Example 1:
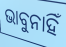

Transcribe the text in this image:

ଭାବୁନାହିଁ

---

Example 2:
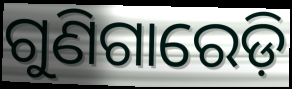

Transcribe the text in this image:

ଗୁଣିଗାରେଡ଼ି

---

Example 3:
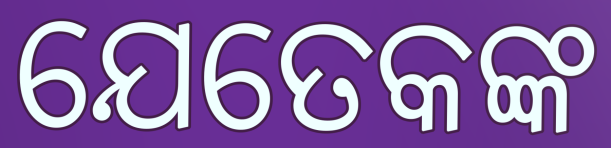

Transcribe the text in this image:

ଯେତେକଙ୍କ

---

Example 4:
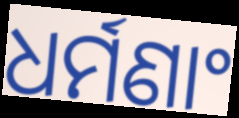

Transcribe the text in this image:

ଧର୍ମଣାଂ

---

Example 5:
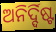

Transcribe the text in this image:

ଅନିର୍ଦ୍ଦିଷ୍ଟ